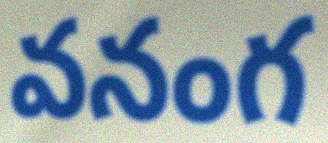
వనంగ